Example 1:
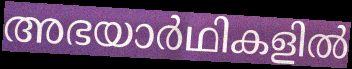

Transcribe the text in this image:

അഭയാർഥികളിൽ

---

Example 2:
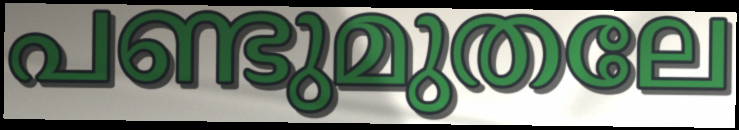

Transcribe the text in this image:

പണ്ടുമുതലേ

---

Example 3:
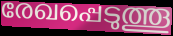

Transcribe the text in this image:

രേഖപ്പെടുത്തൂ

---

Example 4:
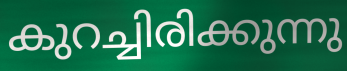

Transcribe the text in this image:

കുറച്ചിരിക്കുന്നു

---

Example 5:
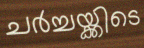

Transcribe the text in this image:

ചർച്ചയ്ക്കിടെ